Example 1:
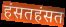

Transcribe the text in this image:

हंसतहंसत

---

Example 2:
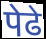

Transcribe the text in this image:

पेढे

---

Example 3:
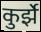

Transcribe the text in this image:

कुर्झे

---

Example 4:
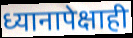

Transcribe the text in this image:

ध्यानापेक्षाही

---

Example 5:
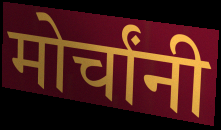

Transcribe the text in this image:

मोर्चांनी